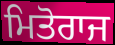
ਮਿਤੋਰਾਜ